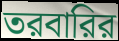
তরবারির